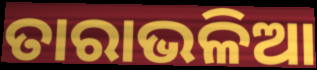
ତାରାଭଳିଆ